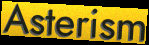
Asterism